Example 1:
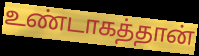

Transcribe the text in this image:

உண்டாகத்தான்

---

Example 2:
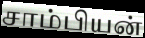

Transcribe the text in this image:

சாம்பியன்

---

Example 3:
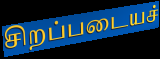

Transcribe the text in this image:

சிறப்படையச்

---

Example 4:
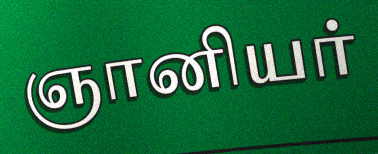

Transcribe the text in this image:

ஞானியர்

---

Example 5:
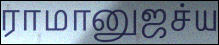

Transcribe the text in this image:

ராமானுஜச்ய